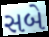
સબે